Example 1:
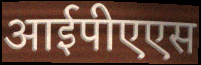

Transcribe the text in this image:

आईपीएएस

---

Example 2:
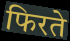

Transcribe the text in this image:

फिरते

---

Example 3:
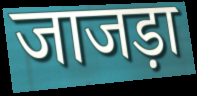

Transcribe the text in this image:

जाजड़ा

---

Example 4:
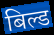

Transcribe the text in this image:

बिल्ड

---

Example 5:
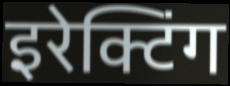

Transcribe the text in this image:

इरेक्टिंग